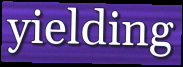
yielding